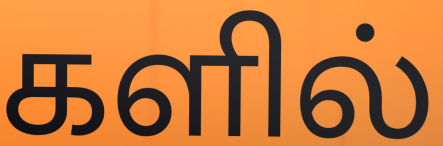
களில்